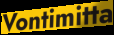
Vontimitta